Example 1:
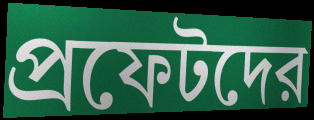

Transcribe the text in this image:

প্রফেটদের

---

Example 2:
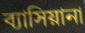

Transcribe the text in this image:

ব্যাসিয়ানা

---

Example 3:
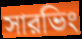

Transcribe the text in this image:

সারভিং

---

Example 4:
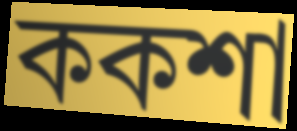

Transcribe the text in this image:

ককশা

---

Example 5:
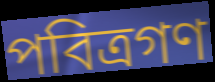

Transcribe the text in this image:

পবিত্রগণ